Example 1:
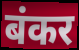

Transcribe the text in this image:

बंकर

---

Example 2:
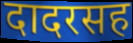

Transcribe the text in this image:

दादरसह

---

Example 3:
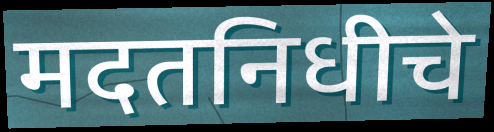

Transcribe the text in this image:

मदतनिधीचे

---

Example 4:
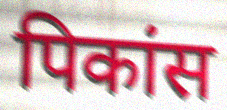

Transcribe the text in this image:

पिकांस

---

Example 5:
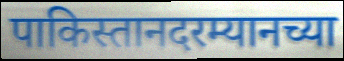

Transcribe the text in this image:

पाकिस्तानदरम्यानच्या